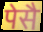
पेसै